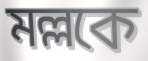
মল্লকে